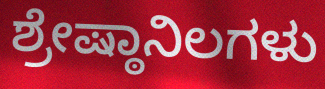
ಶ್ರೇಷ್ಠಾನಿಲಗಳು